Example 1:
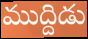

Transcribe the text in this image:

ముద్దిడు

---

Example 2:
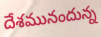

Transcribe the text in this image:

దేశమునందున్న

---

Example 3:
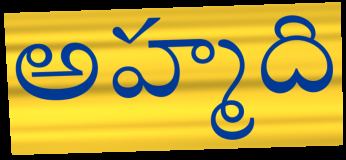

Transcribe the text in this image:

అహ్మది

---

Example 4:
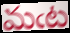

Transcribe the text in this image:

మఁట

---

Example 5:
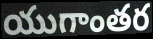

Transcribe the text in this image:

యుగాంతర